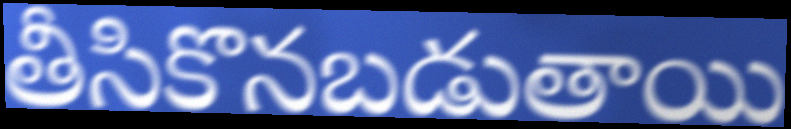
తీసికొనబడుతాయి